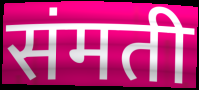
संमती